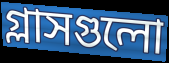
গ্লাসগুলো